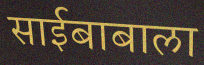
साईबाबाला